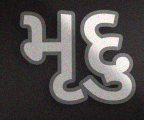
મૃદુ